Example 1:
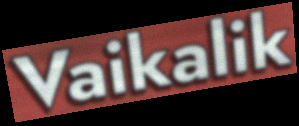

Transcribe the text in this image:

Vaikalik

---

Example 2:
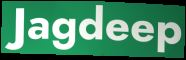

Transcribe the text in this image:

Jagdeep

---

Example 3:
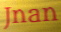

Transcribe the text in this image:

Jnan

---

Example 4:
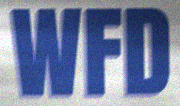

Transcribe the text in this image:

WFD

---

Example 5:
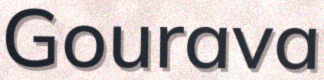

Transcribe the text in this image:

Gourava